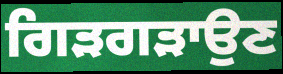
ਗਿੜਗੜਾਉਣ